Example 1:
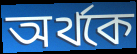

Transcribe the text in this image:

অর্থকে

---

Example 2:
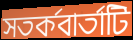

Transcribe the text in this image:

সতর্কবার্তাটি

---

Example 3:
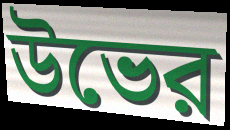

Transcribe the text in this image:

উভের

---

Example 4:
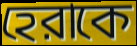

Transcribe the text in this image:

হেরাকে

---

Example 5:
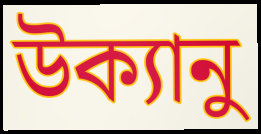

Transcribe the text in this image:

উক্যানু